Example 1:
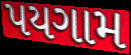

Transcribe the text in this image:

પયગામ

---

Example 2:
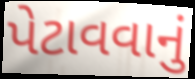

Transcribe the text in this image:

પેટાવવાનું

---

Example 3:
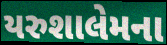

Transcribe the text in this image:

યરુશાલેમના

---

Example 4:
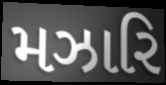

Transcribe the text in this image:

મઝારિ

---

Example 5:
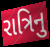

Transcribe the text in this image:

રાત્રિનુ